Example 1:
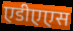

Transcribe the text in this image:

एडीएएस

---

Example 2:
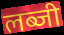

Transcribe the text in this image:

लब्जी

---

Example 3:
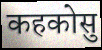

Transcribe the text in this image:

कहकोसु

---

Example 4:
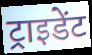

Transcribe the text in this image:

ट्राइडेंट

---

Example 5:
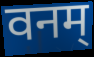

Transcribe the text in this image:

वनम्